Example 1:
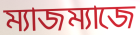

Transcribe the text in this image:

ম্যাজম্যাজে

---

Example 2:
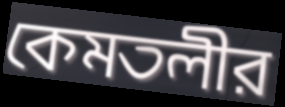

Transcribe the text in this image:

কেমতলীর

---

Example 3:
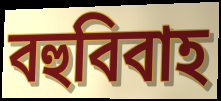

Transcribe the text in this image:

বহুবিবাহ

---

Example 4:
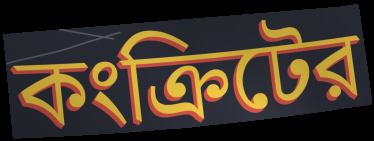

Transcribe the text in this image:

কংক্রিটের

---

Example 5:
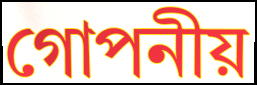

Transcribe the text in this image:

গোপনীয়